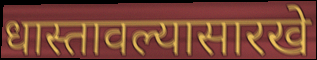
धास्तावल्यासारखे